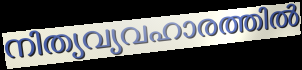
നിത്യവ്യവഹാരത്തിൽ